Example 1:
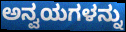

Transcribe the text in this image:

ಅನ್ವಯಗಳನ್ನು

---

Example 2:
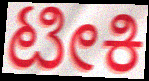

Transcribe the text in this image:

ಟೀಕಿ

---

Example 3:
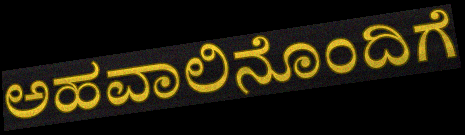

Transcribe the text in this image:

ಅಹವಾಲಿನೊಂದಿಗೆ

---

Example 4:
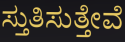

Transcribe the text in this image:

ಸ್ತುತಿಸುತ್ತೇವೆ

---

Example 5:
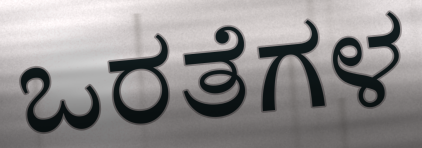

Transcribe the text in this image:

ಒರತೆಗಳ